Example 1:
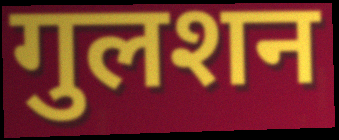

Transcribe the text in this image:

गुलशन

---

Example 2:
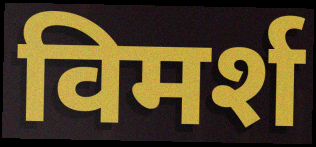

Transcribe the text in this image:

विमर्श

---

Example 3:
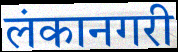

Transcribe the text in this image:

लंकानगरी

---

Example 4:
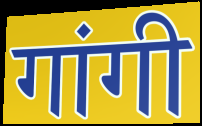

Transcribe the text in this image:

गांगी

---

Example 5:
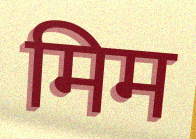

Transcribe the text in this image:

मिम